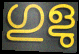
ഗുളു